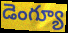
డెంగ్యూ